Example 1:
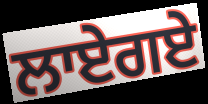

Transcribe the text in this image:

ਲਾਏਗਏ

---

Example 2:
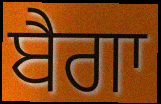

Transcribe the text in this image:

ਬੈਗਾ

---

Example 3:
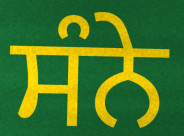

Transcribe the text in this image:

ਸੰਨੇ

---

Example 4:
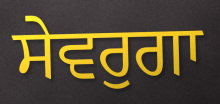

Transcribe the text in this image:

ਸੇਵਰੁਗਾ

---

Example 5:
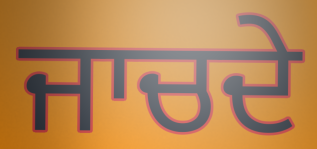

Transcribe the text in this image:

ਜਾਚਦੇ